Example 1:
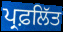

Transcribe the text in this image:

ਪ੍ਰਫ਼ਲਿੱਤ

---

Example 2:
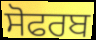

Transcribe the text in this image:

ਸੋਫਰਬ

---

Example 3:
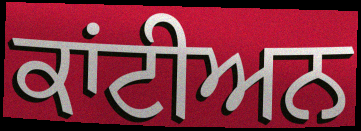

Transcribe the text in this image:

ਕਾਂਟੀਅਨ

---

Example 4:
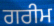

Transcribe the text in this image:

ਗਰੀਮ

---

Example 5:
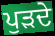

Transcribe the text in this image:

ਪੁੜਦੇ